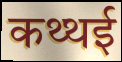
कथ्थई